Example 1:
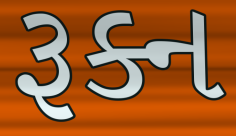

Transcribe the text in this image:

રૂક્ન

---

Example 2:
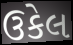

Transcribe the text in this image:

ઉકેલ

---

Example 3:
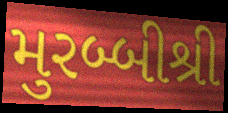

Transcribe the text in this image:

મુરબ્બીશ્રી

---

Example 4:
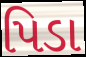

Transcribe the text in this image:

પિડા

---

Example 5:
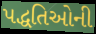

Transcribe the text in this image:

પદ્ધતિઓની